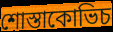
শোস্তাকোভিচ